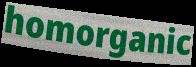
homorganic